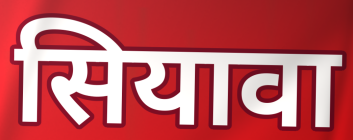
सियावा